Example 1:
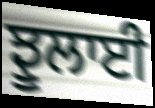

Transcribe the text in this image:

ਝੂਲਾਈ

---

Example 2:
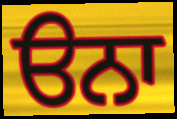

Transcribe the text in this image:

ੳਨਾ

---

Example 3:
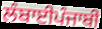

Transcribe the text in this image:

ਲੰਬਾਈਪੰਜਾਬੀ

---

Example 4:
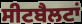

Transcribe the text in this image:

ਸੀਟਬੈਲਟਾਂ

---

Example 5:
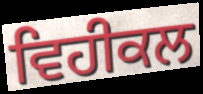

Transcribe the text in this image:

ਵਿਹੀਕਲ